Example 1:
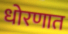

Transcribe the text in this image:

धोरणात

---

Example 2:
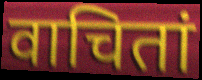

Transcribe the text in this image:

वाचितां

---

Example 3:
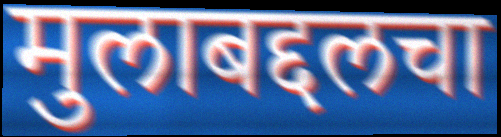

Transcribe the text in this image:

मुलाबद्दलचा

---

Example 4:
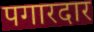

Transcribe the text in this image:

पगारदार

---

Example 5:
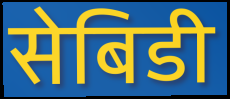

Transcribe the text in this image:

सेबिडी